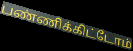
பண்ணிக்கிட்டோம்